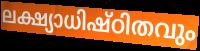
ലക്ഷ്യാധിഷ്ഠിതവും